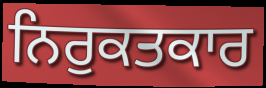
ਨਿਰੁਕਤਕਾਰ